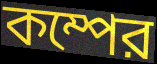
কম্পের